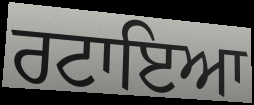
ਰਟਾਇਆ